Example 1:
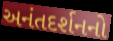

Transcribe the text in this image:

અનંતદર્શનનો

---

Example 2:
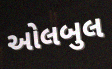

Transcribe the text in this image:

ઓલબુલ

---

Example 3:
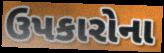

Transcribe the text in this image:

ઉપકારોના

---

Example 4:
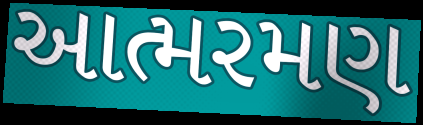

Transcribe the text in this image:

આત્મરમણ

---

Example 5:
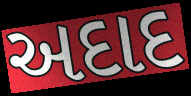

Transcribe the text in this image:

અદાદ